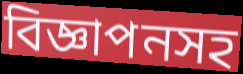
বিজ্ঞাপনসহ